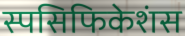
स्पसिफिकेशंस